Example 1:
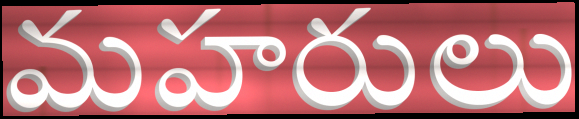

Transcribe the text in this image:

మహరులు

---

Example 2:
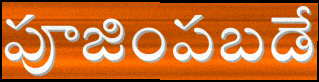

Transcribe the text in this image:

పూజింపబడే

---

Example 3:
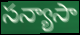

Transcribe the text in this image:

సన్యాసా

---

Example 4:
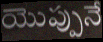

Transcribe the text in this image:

యొప్పునే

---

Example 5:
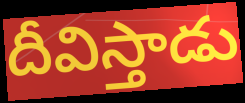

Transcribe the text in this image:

దీవిస్తాడు